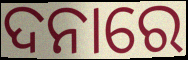
ଦନାରେ